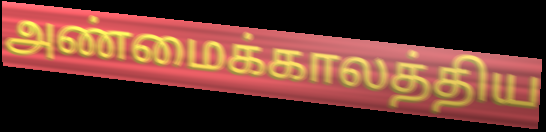
அண்மைக்காலத்திய